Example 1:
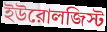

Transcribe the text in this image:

ইউরোলজিস্ট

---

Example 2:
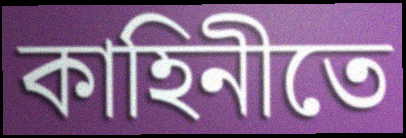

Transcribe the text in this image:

কাহিনীতে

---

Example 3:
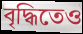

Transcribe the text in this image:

বৃদ্ধিতেও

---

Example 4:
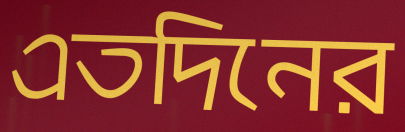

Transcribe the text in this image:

এতদিনের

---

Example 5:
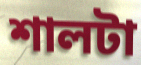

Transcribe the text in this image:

শালটা